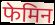
फेमिन